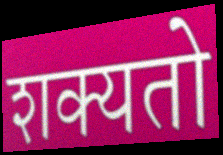
शक्यतो